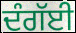
ਦੰਗੱਈ